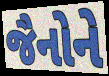
જૈનોને